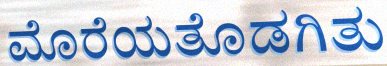
ಮೊರೆಯತೊಡಗಿತು